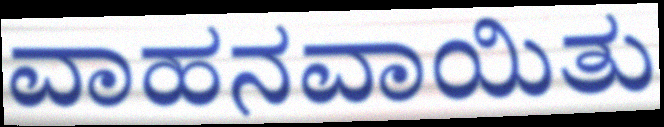
ವಾಹನವಾಯಿತು